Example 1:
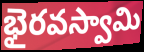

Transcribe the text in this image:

భైరవస్వామి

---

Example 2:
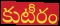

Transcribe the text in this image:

కుటీరం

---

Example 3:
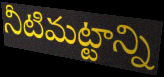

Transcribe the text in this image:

నీటిమట్టాన్ని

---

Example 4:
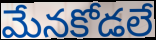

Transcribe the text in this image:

మేనకోడలే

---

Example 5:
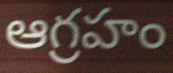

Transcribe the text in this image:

ఆగ్రహం